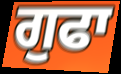
ਗੁਫਾ